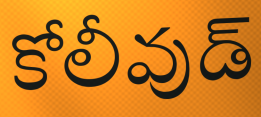
కోలీవుడ్